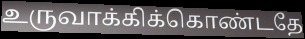
உருவாக்கிக்கொண்டதே